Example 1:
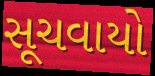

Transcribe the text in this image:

સૂચવાયો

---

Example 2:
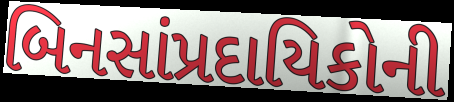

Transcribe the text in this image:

બિનસાંપ્રદાયિકોની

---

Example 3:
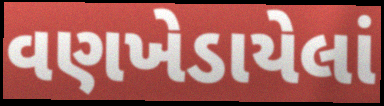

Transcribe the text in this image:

વણખેડાયેલાં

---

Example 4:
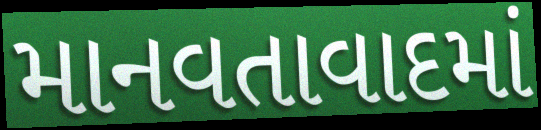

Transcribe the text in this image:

માનવતાવાદમાં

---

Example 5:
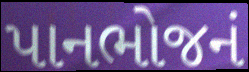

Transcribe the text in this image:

પાનભોજનં